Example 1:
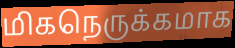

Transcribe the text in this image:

மிகநெருக்கமாக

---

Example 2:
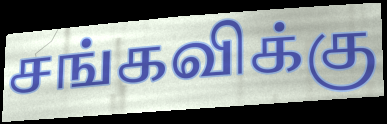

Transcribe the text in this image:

சங்கவிக்கு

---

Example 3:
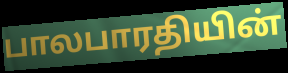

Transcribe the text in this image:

பாலபாரதியின்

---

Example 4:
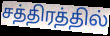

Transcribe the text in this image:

சத்திரத்தில்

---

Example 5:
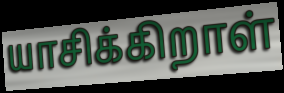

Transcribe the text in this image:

யாசிக்கிறாள்